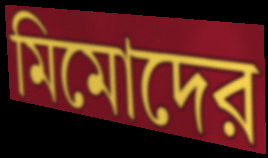
মিমোদের